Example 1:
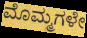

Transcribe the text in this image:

ಮೊಮ್ಮಗಳೇ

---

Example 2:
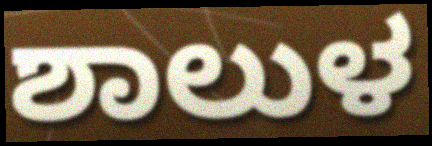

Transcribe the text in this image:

ಶಾಲುಳ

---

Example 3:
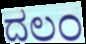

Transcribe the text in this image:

ದಲಂ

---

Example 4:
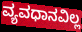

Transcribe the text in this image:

ವ್ಯವಧಾನವಿಲ್ಲ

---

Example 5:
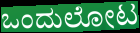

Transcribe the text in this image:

ಒಂದುಲೋಟ